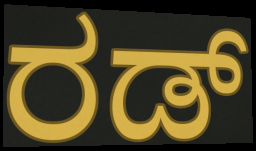
ರಡ್